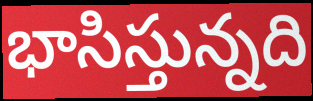
భాసిస్తున్నది